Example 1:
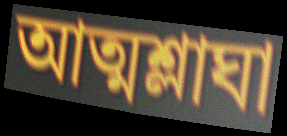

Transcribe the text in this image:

আত্মশ্লাঘা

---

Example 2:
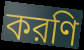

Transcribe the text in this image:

করণি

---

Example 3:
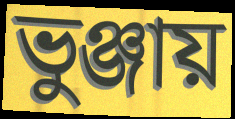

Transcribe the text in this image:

ভুঞ্জায়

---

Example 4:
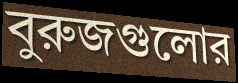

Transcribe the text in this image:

বুরুজগুলোর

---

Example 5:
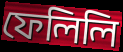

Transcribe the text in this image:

ফেলিলি